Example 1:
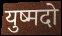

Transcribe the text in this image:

युष्मदो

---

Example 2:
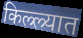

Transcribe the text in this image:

किल्ल्यात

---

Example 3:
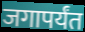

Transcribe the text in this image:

जगापर्यंत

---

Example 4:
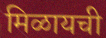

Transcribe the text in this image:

मिळायची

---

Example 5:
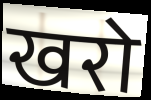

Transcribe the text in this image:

खरो